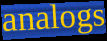
analogs